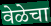
वेळेचा